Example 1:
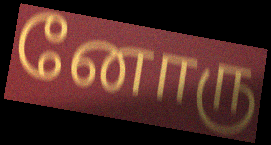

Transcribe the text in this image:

னோரு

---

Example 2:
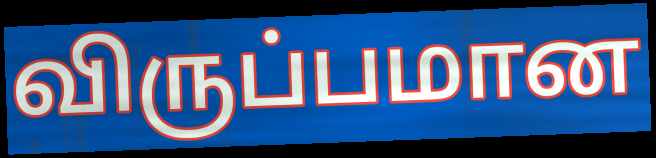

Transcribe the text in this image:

விருப்பமான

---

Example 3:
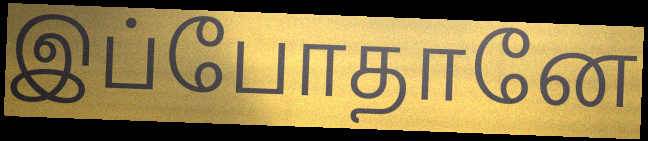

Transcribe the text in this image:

இப்போதானே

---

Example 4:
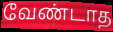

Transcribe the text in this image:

வேண்டாத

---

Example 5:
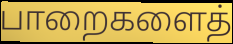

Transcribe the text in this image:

பாறைகளைத்